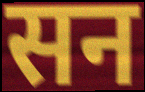
सन